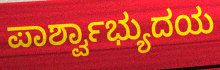
ಪಾರ್ಶ್ವಾಭ್ಯುದಯ